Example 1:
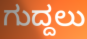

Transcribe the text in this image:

ಗುದ್ದಲು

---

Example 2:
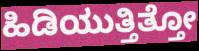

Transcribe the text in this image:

ಹಿಡಿಯುತ್ತಿತ್ತೋ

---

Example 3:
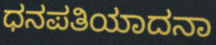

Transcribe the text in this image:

ಧನಪತಿಯಾದನಾ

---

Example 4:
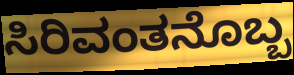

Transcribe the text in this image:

ಸಿರಿವಂತನೊಬ್ಬ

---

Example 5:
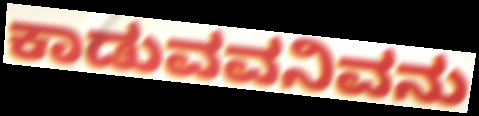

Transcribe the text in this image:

ಕಾಡುವವನಿವನು